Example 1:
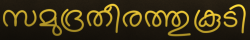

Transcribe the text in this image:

സമുദ്രതീരത്തുകൂടി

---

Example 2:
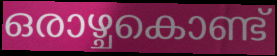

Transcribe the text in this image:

ഒരാഴ്ചകൊണ്ട്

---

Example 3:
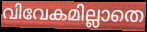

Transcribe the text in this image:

വിവേകമില്ലാതെ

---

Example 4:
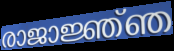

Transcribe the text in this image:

രാജാജ്ഞ്ഞ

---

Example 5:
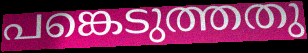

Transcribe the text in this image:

പങ്കെടുത്തതു